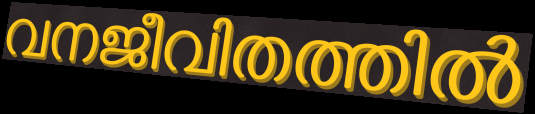
വനജീവിതത്തിൽ